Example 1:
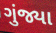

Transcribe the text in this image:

ગુંજ્યા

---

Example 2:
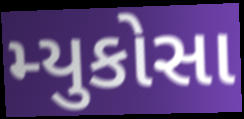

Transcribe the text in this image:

મ્યુકોસા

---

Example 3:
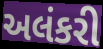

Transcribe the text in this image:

અલંકરી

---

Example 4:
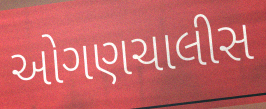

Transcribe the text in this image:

ઓગણચાલીસ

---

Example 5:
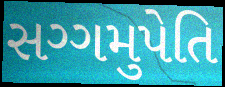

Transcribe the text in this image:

સગ્ગમુપેતિ